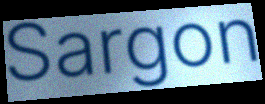
Sargon